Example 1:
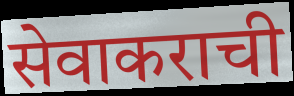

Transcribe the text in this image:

सेवाकराची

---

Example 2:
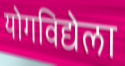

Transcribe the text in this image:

योगविद्येला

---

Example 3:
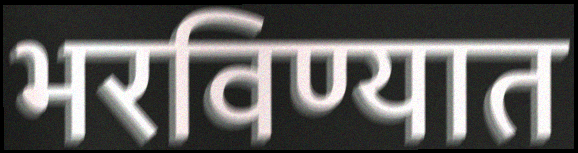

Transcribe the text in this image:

भरविण्यात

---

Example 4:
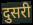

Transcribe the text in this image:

दुसरी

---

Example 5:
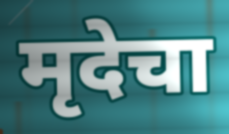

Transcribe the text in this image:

मृदेचा